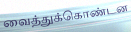
வைத்துக்கொண்டன